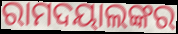
ରାମଦୟାଲଙ୍କର